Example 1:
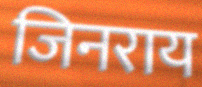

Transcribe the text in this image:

जिनराय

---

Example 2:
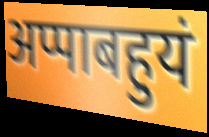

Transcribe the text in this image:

अप्पाबहुयं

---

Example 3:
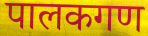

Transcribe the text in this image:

पालकगण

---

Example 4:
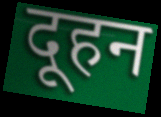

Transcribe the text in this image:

दूहन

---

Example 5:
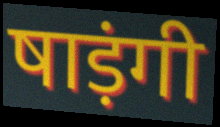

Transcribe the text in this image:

षाड़ंगी